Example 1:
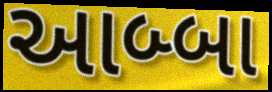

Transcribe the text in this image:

આબ્બા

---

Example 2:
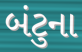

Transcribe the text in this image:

બંટુના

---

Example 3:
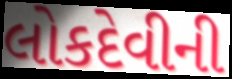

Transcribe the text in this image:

લોકદેવીની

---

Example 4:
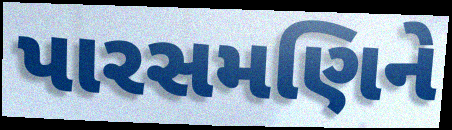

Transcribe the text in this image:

પારસમણિને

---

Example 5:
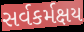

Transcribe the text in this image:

સર્વકર્મક્ષય